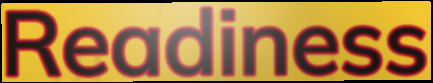
Readiness